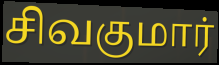
சிவகுமார்